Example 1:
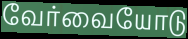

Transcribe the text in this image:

வேர்வையோடு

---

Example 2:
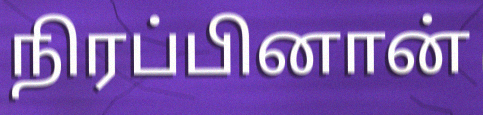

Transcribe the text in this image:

நிரப்பினான்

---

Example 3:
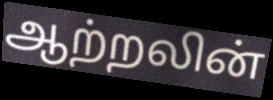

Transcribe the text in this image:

ஆற்றலின்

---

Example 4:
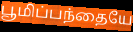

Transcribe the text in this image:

பூமிப்பந்தையே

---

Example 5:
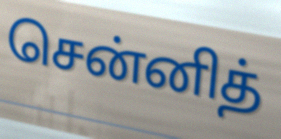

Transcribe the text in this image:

சென்னித்